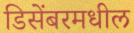
डिसेंबरमधील